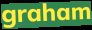
graham